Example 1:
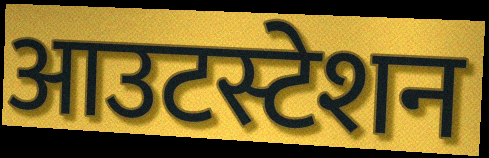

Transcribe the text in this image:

आउटस्टेशन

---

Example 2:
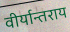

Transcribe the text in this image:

वीर्यान्तराय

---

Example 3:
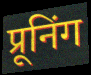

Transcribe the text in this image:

प्रूनिंग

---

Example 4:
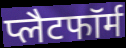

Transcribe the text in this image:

प्लैटफॉर्म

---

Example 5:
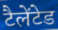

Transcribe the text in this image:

टैलेंटेड